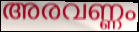
അരവണ്ണം